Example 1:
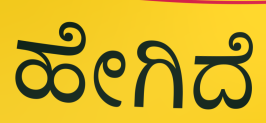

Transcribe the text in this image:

ಹೇಗಿದೆ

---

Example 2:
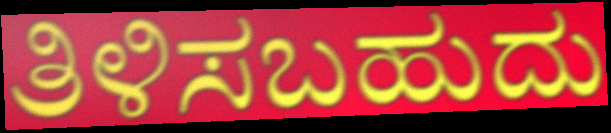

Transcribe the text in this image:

ತಿಳಿಸಬಹುದು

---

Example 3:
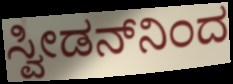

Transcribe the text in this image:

ಸ್ವೀಡನ್‌ನಿಂದ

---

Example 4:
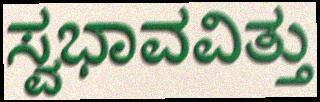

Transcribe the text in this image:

ಸ್ವಭಾವವಿತ್ತು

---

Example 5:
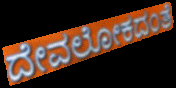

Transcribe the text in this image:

ದೇವಲೋಕದಂತೆ